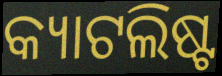
କ୍ୟାଟଲିଷ୍ଟ